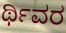
ರ್ಥಿವರ